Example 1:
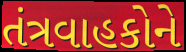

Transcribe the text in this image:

તંત્રવાહકોને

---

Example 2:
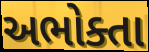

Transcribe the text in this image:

અભોક્તા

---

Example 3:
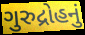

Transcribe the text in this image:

ગુરુદ્રોહનું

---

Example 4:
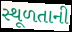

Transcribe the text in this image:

સ્થૂળતાની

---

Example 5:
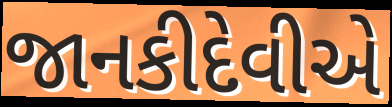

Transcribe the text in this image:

જાનકીદેવીએ